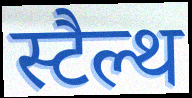
स्टैल्थ